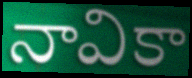
నావికా